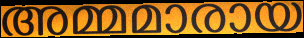
അമ്മമാരായ